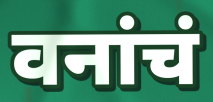
वनांचं